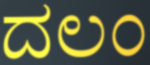
ದಲಂ